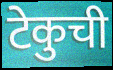
टेकुची